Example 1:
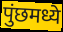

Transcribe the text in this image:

पुंछमध्ये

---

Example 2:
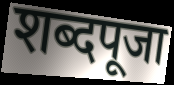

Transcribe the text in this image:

शब्दपूजा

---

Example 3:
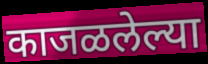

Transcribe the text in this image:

काजळलेल्या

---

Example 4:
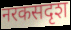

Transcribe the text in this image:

नरकसदृश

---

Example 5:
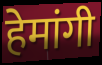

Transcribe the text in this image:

हेमांगी